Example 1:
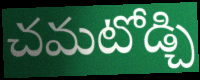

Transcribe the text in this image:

చమటోడ్చి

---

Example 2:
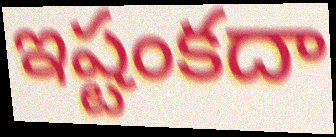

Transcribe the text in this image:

ఇష్టంకదా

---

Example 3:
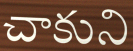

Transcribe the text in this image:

చాకుని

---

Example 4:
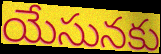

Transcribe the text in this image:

యేసునకు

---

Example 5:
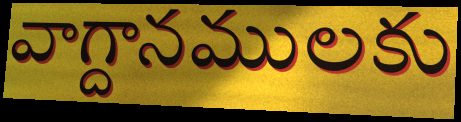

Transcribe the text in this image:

వాగ్దానములకు